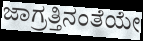
ಜಾಗ್ರತ್ತಿನಂತೆಯೇ